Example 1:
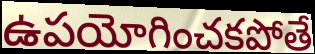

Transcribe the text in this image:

ఉపయోగించకపోతే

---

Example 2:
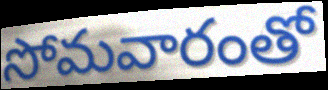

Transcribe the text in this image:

సోమవారంతో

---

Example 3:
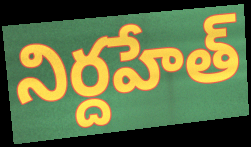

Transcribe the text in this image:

నిర్దహేత్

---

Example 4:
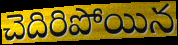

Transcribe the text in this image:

చెదిరిపోయిన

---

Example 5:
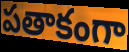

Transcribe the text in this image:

పతాకంగా